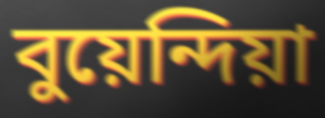
বুয়েন্দিয়া